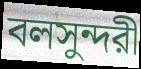
বলসুন্দরী